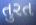
તુરત